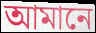
আমানে